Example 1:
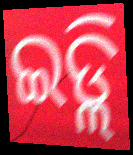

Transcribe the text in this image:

ଇଡ୍ଲି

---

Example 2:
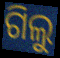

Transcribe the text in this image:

ଗିଲୁ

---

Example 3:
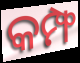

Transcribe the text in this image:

କମ୍ଫ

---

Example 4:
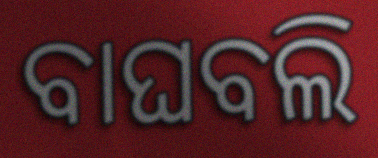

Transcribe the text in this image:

ବାଘବଲି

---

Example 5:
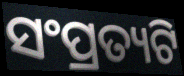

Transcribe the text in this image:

ସଂପ୍ରତ୍ୟଟି